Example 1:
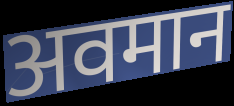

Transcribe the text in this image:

अवमान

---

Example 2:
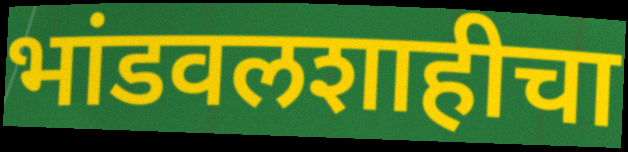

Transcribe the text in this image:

भांडवलशाहीचा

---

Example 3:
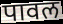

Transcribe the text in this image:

पावल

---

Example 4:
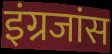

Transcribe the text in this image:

इंग्रजांस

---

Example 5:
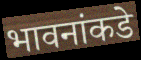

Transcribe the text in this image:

भावनांकडे